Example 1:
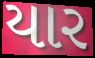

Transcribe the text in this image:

યાર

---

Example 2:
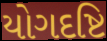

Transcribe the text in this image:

યોગદષ્ટિ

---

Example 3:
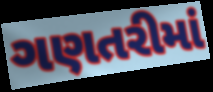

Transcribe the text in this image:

ગણતરીમાં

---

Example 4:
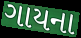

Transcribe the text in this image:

ગાયના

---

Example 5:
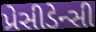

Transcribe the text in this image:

પ્રેસીડેન્સી